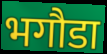
भगौडा